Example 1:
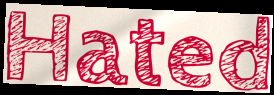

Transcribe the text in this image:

Hated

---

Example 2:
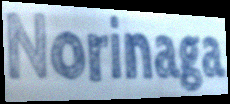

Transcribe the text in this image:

Norinaga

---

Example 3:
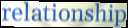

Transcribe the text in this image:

relationship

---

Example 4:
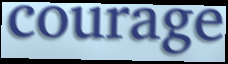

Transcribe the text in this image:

courage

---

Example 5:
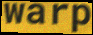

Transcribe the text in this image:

warp